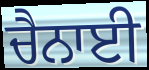
ਚੈਨਾਈ